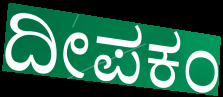
ದೀಪಕಂ